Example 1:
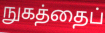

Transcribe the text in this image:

நுகத்தைப்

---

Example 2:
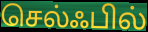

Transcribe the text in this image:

செல்ஃபில்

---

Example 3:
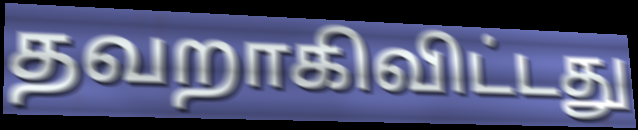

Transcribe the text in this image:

தவறாகிவிட்டது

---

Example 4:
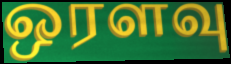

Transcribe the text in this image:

ஒரளவு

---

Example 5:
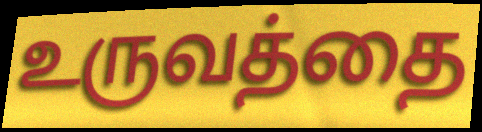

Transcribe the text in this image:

உருவத்தை